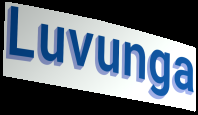
Luvunga